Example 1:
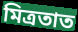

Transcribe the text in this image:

মিত্ৰতাত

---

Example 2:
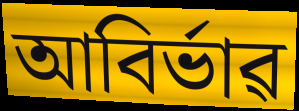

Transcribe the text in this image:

আবিৰ্ভাৱ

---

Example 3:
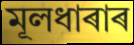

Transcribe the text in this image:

মূলধাৰাৰ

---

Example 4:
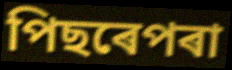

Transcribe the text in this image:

পিছৰেপৰা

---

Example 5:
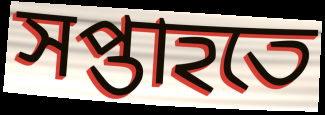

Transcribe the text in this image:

সপ্তাহতে